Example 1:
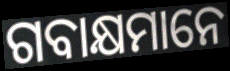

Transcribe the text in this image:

ଗବାକ୍ଷମାନେ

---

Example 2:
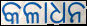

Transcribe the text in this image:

କଳାଧନ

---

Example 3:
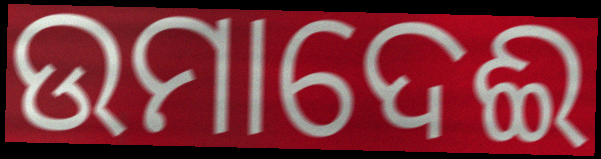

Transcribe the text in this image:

ଉମାଦେଈ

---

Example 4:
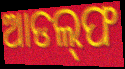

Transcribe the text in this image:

ଆଡଲ୍‌ଫ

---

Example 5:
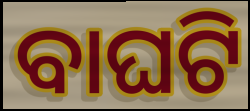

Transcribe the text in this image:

ବାଘଟି